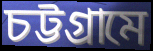
চট্টগ্রামে